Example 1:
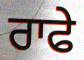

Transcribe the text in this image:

ਰਾਫੇ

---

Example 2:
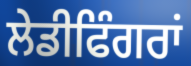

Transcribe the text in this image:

ਲੇਡੀਫਿੰਗਰਾਂ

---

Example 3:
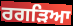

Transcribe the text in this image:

ਰਗੜਿਆ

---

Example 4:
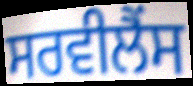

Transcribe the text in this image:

ਸਰਵੀਲੈਂਸ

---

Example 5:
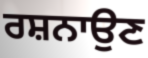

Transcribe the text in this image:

ਰਸ਼ਨਾਉਣ